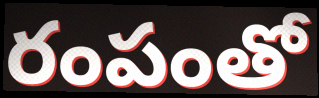
రంపంతో